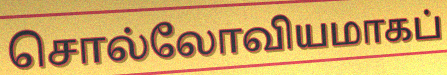
சொல்லோவியமாகப்